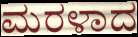
ಮರಳಾದ